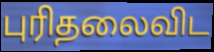
புரிதலைவிட